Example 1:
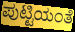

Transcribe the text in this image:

ಪುಟ್ಟಿಯಂತೆ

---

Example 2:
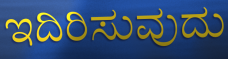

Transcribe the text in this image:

ಇದಿರಿಸುವುದು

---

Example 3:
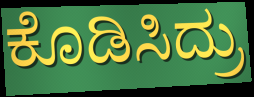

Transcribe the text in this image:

ಕೊಡಿಸಿದ್ರು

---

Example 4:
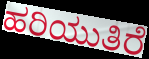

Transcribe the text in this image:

ಹರಿಯುತಿರೆ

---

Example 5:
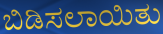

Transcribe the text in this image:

ಬಿಡಿಸಲಾಯಿತು